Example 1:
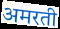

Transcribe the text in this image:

अमरती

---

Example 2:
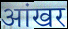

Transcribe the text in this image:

आंखर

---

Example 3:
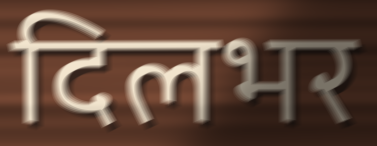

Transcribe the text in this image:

दिलभर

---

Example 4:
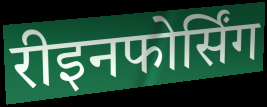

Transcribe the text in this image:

रीइनफोर्सिंग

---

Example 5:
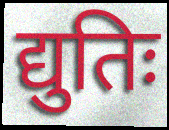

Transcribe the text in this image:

द्युतिः